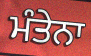
ਮੰਤੇਨਾ